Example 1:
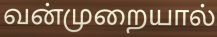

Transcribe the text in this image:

வன்முறையால்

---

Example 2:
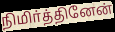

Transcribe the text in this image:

நிமிர்த்தினேன்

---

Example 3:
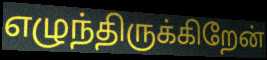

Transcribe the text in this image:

எழுந்திருக்கிறேன்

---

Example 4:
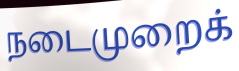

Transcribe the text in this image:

நடைமுறைக்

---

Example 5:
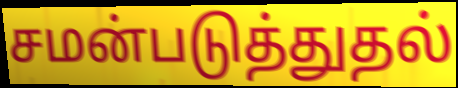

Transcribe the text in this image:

சமன்படுத்துதல்